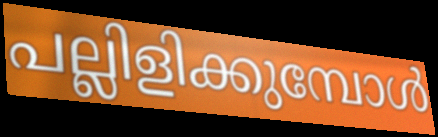
പല്ലിളിക്കുമ്പോൾ